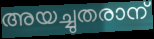
അയച്ചുതരാന്